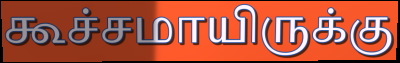
கூச்சமாயிருக்கு